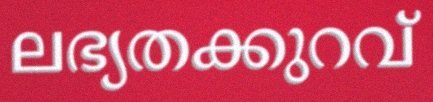
ലഭ്യതക്കുറവ്